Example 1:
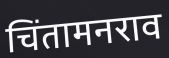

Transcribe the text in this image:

चिंतामनराव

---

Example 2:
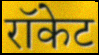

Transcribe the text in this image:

रॉकेट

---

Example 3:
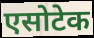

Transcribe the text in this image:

एसोटेक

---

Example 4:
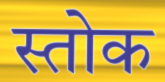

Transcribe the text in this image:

स्तोक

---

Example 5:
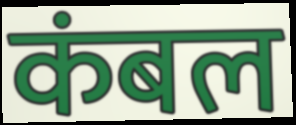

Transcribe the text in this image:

कंबल